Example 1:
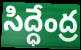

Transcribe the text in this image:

సిద్ధేంద్ర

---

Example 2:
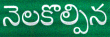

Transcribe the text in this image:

నెలకొల్పిన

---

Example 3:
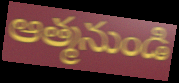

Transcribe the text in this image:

ఆత్మనుండి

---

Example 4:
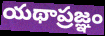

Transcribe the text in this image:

యథాప్రజ్ఞం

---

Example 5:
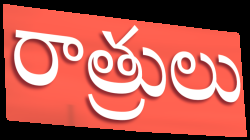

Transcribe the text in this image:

రాత్రులు